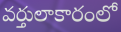
వర్తులాకారంలో